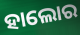
ହାଲୋର